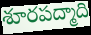
శూరపద్మాది